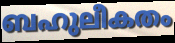
ബഹുലീകതം